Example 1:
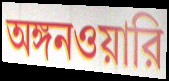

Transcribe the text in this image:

অঙ্গনওয়ারি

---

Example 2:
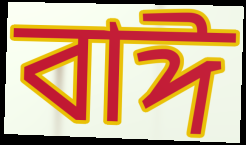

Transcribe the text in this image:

বাঈ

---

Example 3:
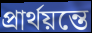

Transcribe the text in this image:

প্রার্থয়ন্তে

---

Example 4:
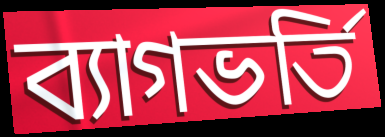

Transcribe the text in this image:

ব্যাগভর্তি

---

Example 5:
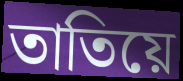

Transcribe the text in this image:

তাতিয়ে